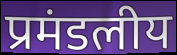
प्रमंडलीय